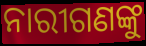
ନାରୀଗଣଙ୍କୁ